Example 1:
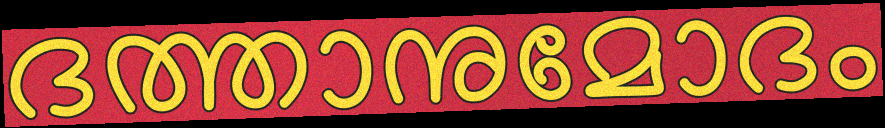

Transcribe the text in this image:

ദത്താനുമോദം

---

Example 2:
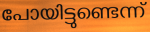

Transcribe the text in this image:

പോയിട്ടുണ്ടെന്ന്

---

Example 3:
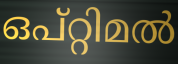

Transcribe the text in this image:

ഒപ്റ്റിമൽ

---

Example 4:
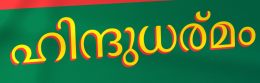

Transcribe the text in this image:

ഹിന്ദുധര്മം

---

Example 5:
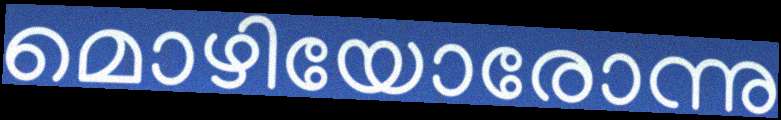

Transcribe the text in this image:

മൊഴിയോരോന്നു